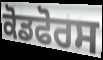
ਕੋਡਫੋਰਸ